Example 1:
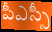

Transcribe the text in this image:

పీఎస్సీ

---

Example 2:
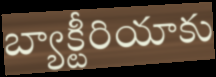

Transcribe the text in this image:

బ్యాక్టీరియాకు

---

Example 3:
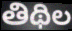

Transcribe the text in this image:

తిథిల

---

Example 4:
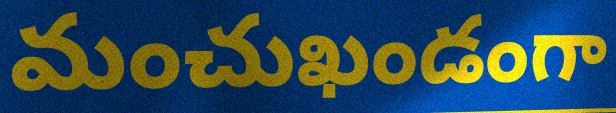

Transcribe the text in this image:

మంచుఖండంగా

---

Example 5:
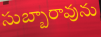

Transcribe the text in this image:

సుబ్బారావును